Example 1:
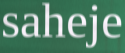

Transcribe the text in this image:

saheje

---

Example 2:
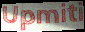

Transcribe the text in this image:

Upmiti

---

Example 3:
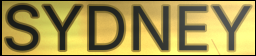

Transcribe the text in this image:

SYDNEY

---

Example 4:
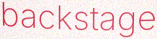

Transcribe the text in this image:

backstage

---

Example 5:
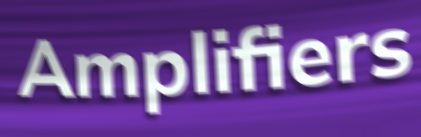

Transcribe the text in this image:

Amplifiers